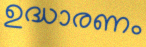
ഉദ്ധാരണം